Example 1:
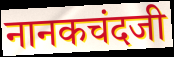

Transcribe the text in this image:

नानकचंदजी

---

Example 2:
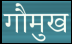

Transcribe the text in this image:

गौमुख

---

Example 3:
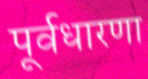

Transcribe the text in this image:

पूर्वधारणा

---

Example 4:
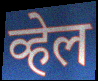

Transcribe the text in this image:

व्हेल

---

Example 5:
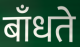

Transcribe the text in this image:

बाँधते